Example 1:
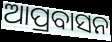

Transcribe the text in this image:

ଆପ୍ରବାସନ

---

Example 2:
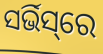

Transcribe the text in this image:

ସର୍ଭିସ୍‌ରେ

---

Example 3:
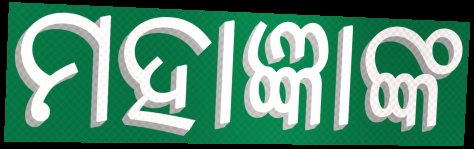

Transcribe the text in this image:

ମହାଜ୍ଞାଙ୍କ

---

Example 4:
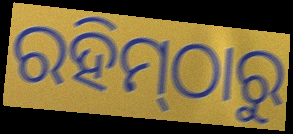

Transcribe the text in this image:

ରହିମ୍‌ଠାରୁ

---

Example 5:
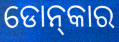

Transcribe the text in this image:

ଡୋନ୍‍କାର